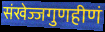
संखेज्जगुणहीणं